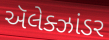
ઍલેક્ઝાંડર